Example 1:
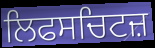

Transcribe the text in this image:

ਲਿਫਸਚਿਟਜ਼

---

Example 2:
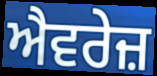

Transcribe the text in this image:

ਐਵਰੇਜ਼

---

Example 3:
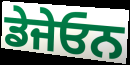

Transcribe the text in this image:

ਡੇਜੇਓਨ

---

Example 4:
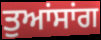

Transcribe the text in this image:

ਤੁਆਂਸਾਂਗ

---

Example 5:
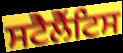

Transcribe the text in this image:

ਸਟੈਲੈਂਟਿਸ